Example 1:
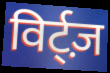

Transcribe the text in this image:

विर्ट्ज़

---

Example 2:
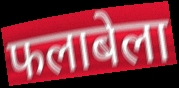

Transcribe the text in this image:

फलाबेला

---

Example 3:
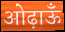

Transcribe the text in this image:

ओढ़ाऊँ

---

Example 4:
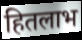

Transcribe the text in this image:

हितलाभ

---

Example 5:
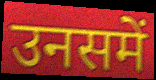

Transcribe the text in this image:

उनसमें